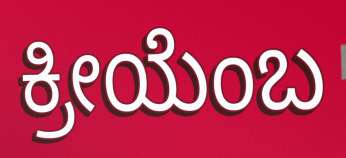
ಕ್ರೀಯೆಂಬ